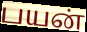
பயன்